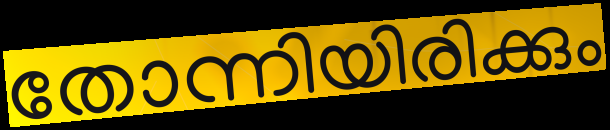
തോന്നിയിരിക്കും